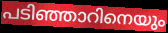
പടിഞ്ഞാറിനെയും